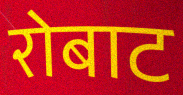
रोबाट